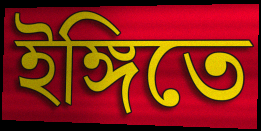
ইঙ্গিতে